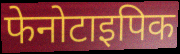
फेनोटाइपिक